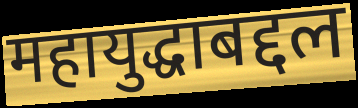
महायुद्धाबद्दल